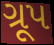
ગ્રૂપ